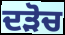
ਦੜੋਚ